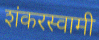
शंकरस्वामी